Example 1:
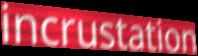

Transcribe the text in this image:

incrustation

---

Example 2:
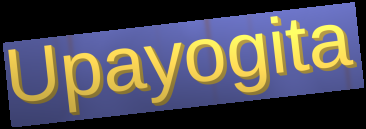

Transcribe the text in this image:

Upayogita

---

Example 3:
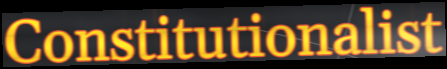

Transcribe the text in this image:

Constitutionalist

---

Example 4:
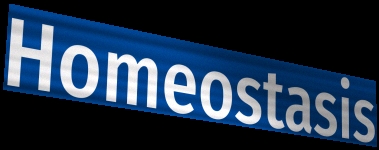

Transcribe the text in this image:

Homeostasis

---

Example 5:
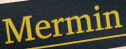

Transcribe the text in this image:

Mermin